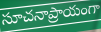
సూచనాప్రాయంగా